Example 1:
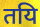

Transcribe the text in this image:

तयि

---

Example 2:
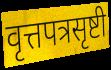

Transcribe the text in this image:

वृत्तपत्रसृष्टी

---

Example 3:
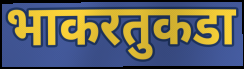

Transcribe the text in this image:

भाकरतुकडा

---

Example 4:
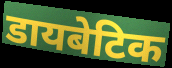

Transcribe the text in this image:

डायबेटिक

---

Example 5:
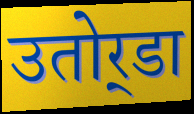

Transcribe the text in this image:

उतोर्डा